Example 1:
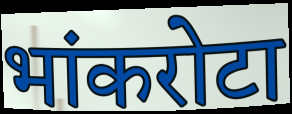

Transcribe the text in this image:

भांकरोटा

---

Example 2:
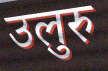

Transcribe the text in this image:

उलुरु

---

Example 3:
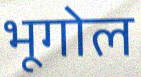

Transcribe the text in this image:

भूगोल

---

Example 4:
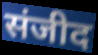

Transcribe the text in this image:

संजीद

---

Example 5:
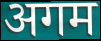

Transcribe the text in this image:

अगम